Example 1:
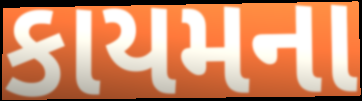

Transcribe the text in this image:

કાયમના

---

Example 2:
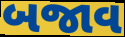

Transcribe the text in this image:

બજાવ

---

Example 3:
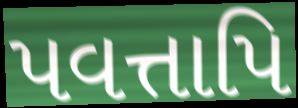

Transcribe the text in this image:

પવત્તાપિ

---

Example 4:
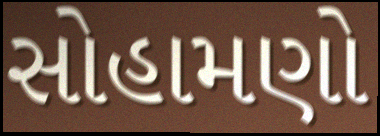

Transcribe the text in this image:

સોહામણો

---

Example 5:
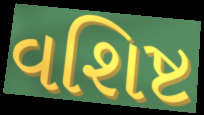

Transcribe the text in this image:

વશિષ્ટ